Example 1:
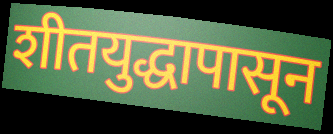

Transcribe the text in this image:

शीतयुद्धापासून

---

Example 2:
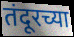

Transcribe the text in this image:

तंदूरच्या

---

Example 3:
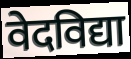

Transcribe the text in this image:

वेदविद्या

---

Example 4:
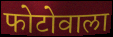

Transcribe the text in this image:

फोटोवाला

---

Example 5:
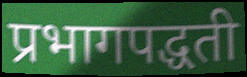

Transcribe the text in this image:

प्रभागपद्धती